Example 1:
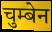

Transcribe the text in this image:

चुम्बेन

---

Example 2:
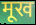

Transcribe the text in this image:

मूख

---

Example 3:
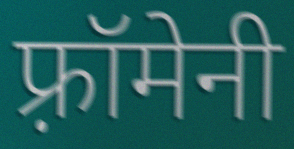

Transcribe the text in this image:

फ़्रॉमेनी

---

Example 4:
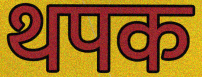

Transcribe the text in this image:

थपक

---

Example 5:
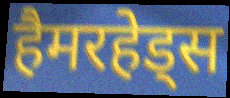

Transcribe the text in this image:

हैमरहेड्स